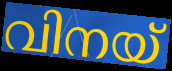
വിനയ്